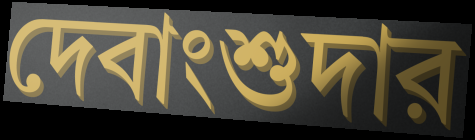
দেবাংশুদার